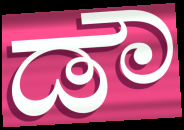
ಡೌ